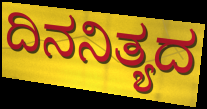
ದಿನನಿತ್ಯದ